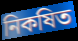
নিকষিত